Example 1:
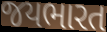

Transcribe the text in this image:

જયભારત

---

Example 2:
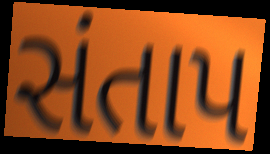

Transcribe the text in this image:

સંતાપ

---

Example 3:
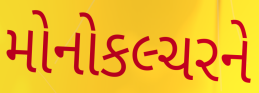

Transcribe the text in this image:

મોનોકલ્ચરને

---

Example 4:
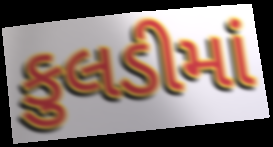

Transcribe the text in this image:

કુલડીમાં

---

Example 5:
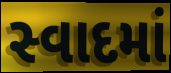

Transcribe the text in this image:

સ્વાદમાં